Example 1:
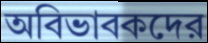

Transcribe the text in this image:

অবিভাবকদের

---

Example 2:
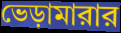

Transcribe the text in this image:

ভেড়ামারার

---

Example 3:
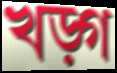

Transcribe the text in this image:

খড়্গ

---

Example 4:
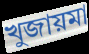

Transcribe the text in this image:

খুজায়মা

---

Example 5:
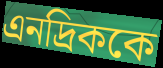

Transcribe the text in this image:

এনদ্রিককে